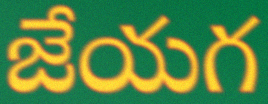
జేయగ